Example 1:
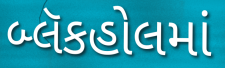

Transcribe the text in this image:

બ્લૅકહોલમાં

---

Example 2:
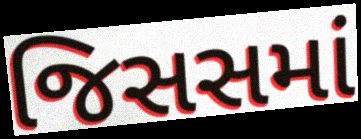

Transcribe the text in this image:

જિસસમાં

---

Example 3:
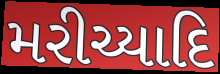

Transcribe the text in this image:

મરીચ્યાદિ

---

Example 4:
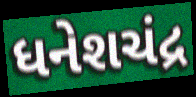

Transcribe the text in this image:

ધનેશચંદ્ર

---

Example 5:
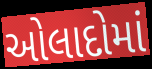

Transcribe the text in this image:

ઓલાદોમાં